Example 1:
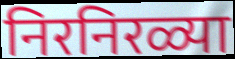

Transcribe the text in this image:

निरनिरळ्या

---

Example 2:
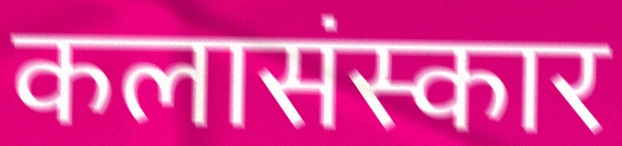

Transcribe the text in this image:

कलासंस्कार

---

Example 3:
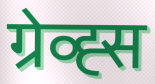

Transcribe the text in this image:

ग्रेव्ह्स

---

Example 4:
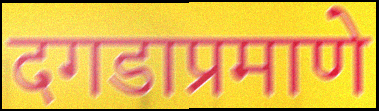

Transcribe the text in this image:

दगडाप्रमाणे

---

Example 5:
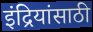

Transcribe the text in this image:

इंद्रियांसाठी